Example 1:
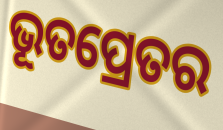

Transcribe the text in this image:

ଭୂତପ୍ରେତର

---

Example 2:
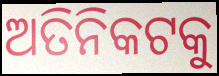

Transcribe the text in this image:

ଅତିନିକଟକୁ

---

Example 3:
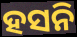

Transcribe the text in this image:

ହସନି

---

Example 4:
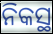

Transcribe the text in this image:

ନିକସ୍ଥ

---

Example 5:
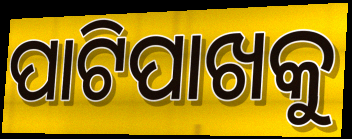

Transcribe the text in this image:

ପାଟିପାଖକୁ